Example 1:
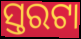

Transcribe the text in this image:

ସ୍ତରଟା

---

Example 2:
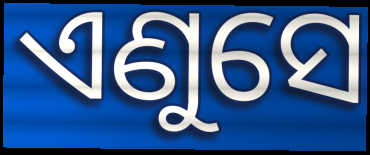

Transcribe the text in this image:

ଏଣୁସେ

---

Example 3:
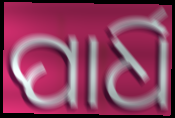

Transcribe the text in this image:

ପାର୍ଧି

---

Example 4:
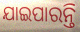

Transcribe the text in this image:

ଯାଇପାରନ୍ତି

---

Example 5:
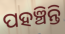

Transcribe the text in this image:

ପହଞ୍ଚିନ୍ତି